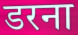
डरना